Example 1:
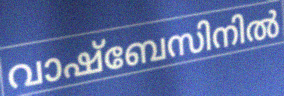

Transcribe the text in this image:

വാഷ്ബേസിനിൽ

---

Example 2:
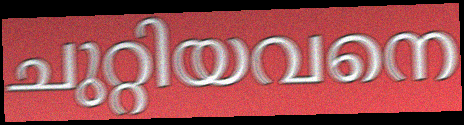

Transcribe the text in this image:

ചുറ്റിയവനെ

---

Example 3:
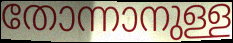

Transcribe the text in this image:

തോന്നാനുള്ള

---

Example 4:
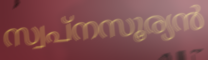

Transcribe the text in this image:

സ്വപ്നസൂര്യൻ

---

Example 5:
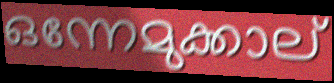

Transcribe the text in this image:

ഒന്നേമുക്കാല്